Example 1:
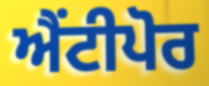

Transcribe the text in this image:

ਐਂਟੀਪੋਰ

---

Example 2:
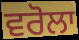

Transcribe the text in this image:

ਵਰੋਲਾ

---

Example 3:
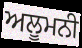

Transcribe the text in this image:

ਅਲੂਮਨੀ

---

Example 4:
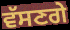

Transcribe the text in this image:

ਵੱਸਣਗੇ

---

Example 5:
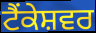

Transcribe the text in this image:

ਟੈਂਕੇਸ਼ਵਰ